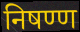
निषण्ण